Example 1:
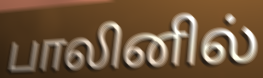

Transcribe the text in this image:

பாலினில்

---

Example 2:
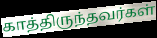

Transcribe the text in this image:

காத்திருந்தவர்கள்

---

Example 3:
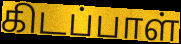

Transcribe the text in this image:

கிடப்பாள்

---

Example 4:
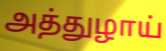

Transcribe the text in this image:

அத்துழாய்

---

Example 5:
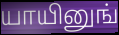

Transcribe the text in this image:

யாயினுங்